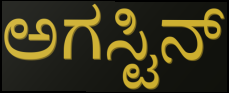
ಅಗಸ್ಟಿನ್